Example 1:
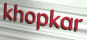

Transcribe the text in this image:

khopkar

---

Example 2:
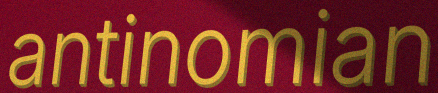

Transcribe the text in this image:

antinomian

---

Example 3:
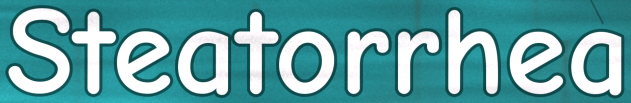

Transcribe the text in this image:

Steatorrhea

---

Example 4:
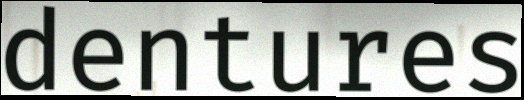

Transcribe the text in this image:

dentures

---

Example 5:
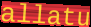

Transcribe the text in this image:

allatu